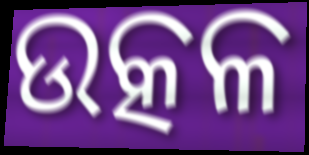
ଉତ୍କଳ